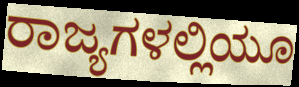
ರಾಜ್ಯಗಳಲ್ಲಿಯೂ